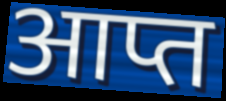
आप्त